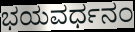
ಭಯವರ್ಧನಂ